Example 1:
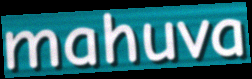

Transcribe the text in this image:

mahuva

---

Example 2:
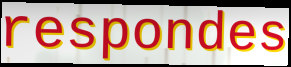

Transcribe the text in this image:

respondes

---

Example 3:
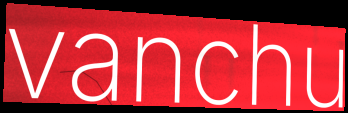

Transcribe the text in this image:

vanchu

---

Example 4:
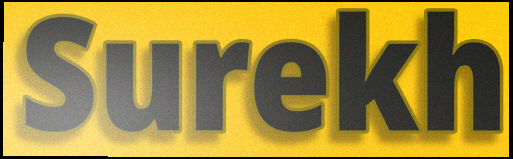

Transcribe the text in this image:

Surekh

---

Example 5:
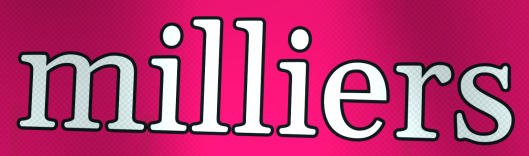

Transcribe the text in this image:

milliers